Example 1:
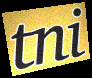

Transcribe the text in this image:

tni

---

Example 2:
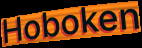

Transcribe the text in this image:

Hoboken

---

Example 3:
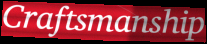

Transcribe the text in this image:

Craftsmanship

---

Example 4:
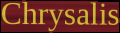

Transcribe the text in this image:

Chrysalis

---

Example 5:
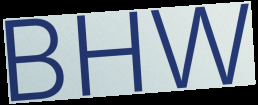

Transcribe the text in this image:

BHW